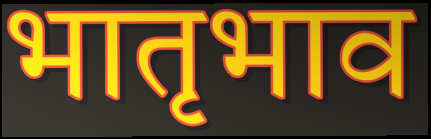
भातृभाव